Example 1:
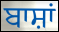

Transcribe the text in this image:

ਬਾਸ਼ਾਂ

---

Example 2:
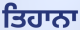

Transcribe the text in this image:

ਤਿਹਾਨਾ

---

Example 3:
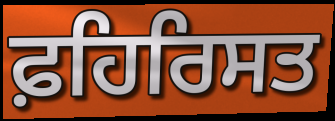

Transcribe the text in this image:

ਫ਼ਹਿਰਿਸਤ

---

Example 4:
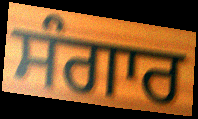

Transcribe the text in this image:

ਸੰਗਾਰ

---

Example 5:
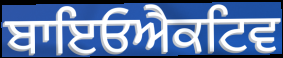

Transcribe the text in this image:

ਬਾਇਓਐਕਟਿਵ